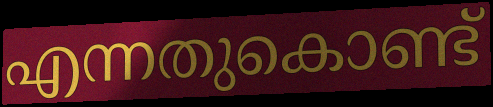
എന്നതുകൊണ്ട്